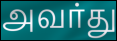
அவர்து